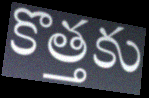
కొత్తకు